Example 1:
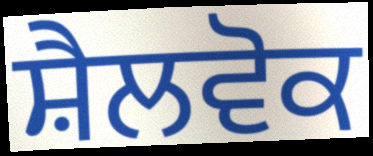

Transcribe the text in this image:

ਸ਼ੈਲਵੋਕ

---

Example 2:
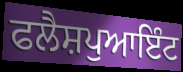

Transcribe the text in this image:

ਫਲੈਸ਼ਪੁਆਇੰਟ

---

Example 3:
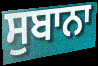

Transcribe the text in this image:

ਸੁਬਾਨਾ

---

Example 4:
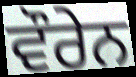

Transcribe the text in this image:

ਵੌਰੇਨ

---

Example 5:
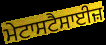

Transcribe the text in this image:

ਮੇਟਾਸਟੈਸਾਈਜ਼